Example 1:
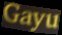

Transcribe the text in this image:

Gayu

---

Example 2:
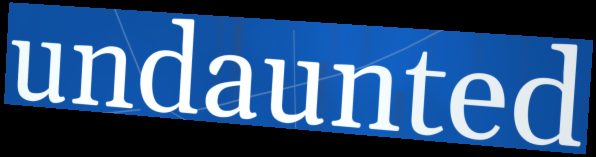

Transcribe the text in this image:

undaunted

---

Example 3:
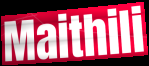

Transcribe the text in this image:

Maithili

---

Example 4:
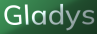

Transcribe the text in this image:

Gladys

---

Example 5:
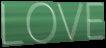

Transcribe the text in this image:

LOVE